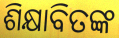
ଶିକ୍ଷାବିତଙ୍କ